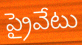
ప్రైవేటు